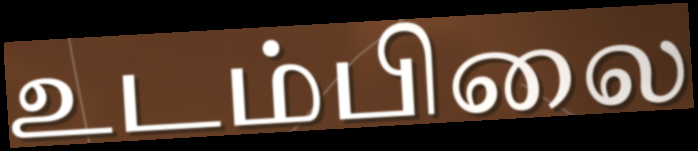
உடம்பிலை